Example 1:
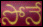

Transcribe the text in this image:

సోనే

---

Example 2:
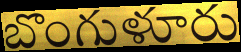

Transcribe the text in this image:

బొంగుళూరు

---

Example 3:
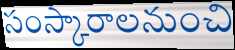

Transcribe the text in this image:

సంస్కారాలనుంచి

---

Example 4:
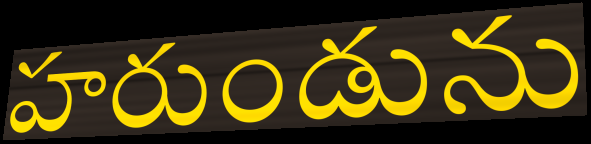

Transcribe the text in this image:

హరుండును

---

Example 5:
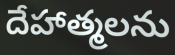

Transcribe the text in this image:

దేహాత్మలను